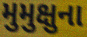
મુમુક્ષુના